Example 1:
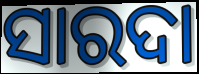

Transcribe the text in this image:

ସାରଦା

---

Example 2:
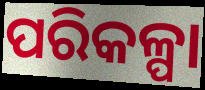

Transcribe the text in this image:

ପରିକଳ୍ପା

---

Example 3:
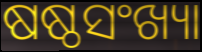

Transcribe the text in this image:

ଷଷ୍ଠସଂଖ୍ୟା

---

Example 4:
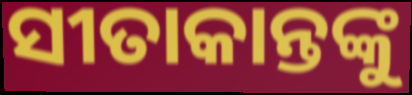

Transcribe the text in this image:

ସୀତାକାନ୍ତଙ୍କୁ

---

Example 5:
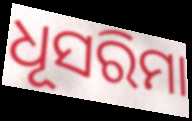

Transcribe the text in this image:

ଧୂସରିମା